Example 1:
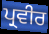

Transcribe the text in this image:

ਪ੍ਰਵੀਰ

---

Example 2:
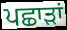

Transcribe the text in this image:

ਪਛਾੜਾਂ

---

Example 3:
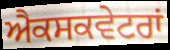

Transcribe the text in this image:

ਐਕਸਕਵੇਟਰਾਂ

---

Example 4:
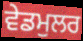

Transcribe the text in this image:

ਵੇਡਮੁਲਰ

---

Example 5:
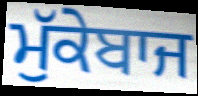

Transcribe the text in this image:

ਮੁੱਕੇਬਾਜ